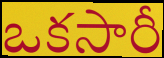
ఒకసారీ